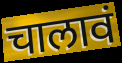
चालावं